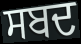
ਸਬਦ